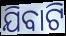
ଯିବାଟି